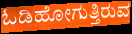
ಓಡಿಹೋಗುತ್ತಿರುವ